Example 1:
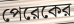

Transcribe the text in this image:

পেরেকের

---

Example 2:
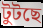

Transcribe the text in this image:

টুটছে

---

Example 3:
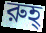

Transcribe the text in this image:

রুহ্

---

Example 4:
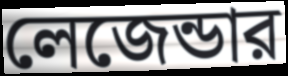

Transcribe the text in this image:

লেজেন্ডার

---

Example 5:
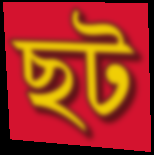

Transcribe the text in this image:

ছট